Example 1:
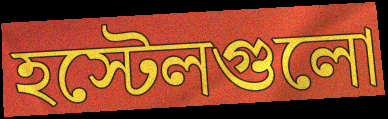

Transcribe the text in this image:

হস্টেলগুলো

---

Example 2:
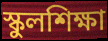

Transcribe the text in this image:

স্কুলশিক্ষা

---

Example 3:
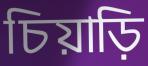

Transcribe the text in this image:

চিয়াড়ি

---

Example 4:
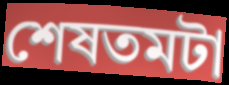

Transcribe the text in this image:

শেষতমটা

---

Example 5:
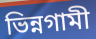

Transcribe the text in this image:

ভিন্নগামী